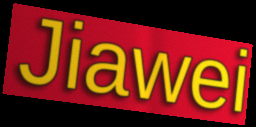
Jiawei